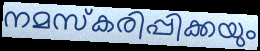
നമസ്കരിപ്പിക്കയും